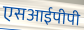
एसआईपीपी